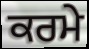
ਕਰਮੇ